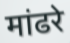
मांढरे